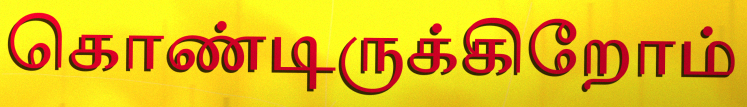
கொண்டிருக்கிறோம்